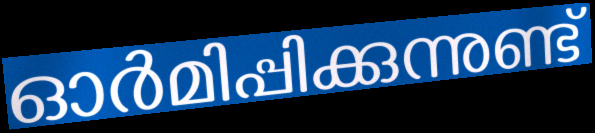
ഓർമിപ്പിക്കുന്നുണ്ട്